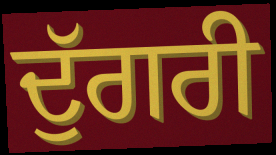
ਦੁੱਗਰੀ